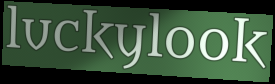
luckylook